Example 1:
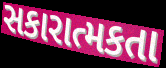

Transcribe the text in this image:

સકારાત્મકતા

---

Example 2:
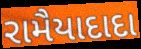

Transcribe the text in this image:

રામૈયાદાદા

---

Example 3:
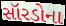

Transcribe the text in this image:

સૉરડોના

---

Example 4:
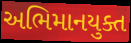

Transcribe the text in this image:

અભિમાનયુક્ત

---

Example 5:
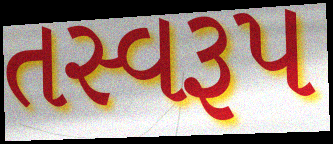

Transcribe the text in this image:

તસ્વરૂપ